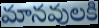
మానవులకి